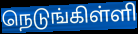
நெடுங்கிள்ளி